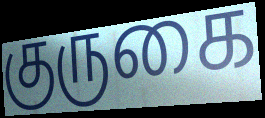
குருகை